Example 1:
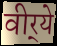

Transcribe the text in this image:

वीर्ये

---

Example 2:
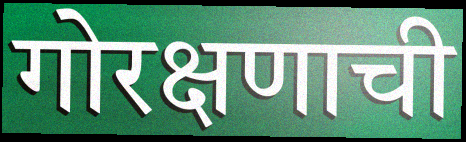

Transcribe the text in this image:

गोरक्षणाची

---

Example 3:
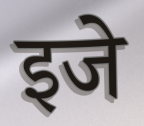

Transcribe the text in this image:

इजे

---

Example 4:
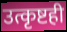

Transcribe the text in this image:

उत्कृष्टही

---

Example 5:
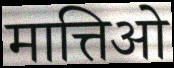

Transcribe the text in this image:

मात्तिओ